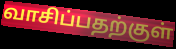
வாசிப்பதற்குள்